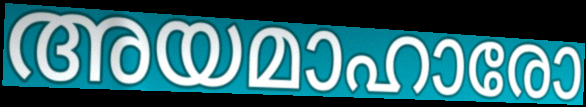
അയമാഹാരോ